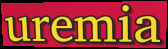
uremia